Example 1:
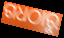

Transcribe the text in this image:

ଗଧଠାରୁ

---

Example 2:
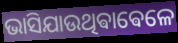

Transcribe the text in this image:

ଭାସିଯାଉଥିଵାଵେଳେ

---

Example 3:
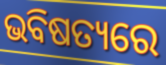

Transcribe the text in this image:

ଭବିଷତ୍ୟରେ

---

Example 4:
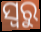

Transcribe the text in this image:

ସ୍ୱରୁ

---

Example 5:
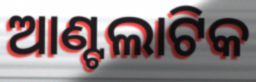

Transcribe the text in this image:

ଆଣ୍ଟଲାଟିକ